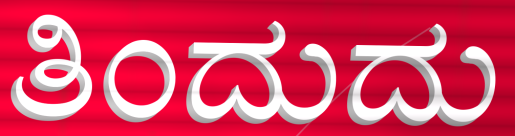
ತಿಂದುದು